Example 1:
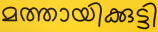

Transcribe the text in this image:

മത്തായിക്കുട്ടി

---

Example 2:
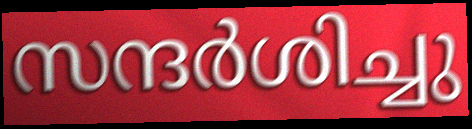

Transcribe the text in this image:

സന്ദർശിച്ചു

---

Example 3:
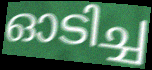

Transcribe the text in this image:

ഓടിച്ച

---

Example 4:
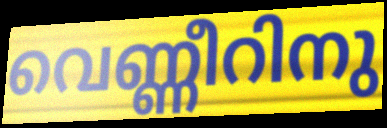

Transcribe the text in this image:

വെണ്ണീറിനു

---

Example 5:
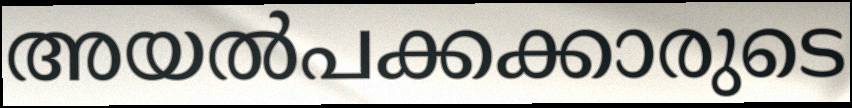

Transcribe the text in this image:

അയൽപക്കക്കാരുടെ